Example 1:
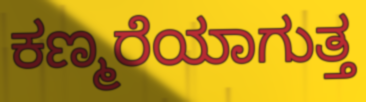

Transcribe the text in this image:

ಕಣ್ಮರೆಯಾಗುತ್ತ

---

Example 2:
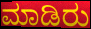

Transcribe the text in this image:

ಮಾಡಿರು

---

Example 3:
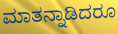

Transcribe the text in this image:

ಮಾತನ್ನಾಡಿದರೂ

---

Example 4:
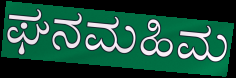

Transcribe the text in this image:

ಘನಮಹಿಮ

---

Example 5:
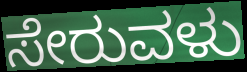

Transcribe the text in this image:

ಸೇರುವಳು